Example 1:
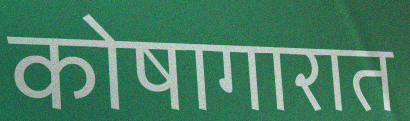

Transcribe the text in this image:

कोषागारात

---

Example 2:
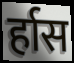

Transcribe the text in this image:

र्हास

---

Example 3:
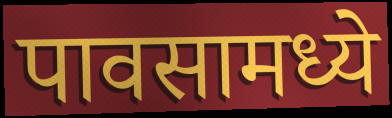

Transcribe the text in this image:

पावसामध्ये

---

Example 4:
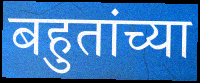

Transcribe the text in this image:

बहुतांच्या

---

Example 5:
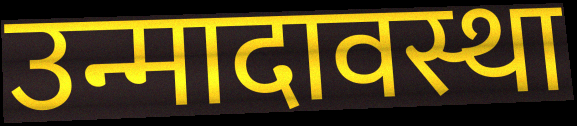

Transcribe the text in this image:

उन्मादावस्था